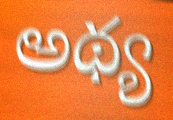
అథ్య